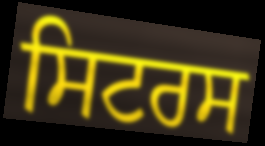
ਸਿਟਰਸ